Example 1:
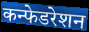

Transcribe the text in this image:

कन्‍फेडरेशन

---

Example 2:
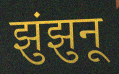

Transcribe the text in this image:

झुंझुनू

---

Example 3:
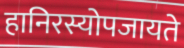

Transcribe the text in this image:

हानिरस्योपजायते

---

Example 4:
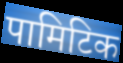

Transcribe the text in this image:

पामिटिक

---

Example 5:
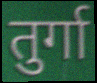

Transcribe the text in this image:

तुर्गा